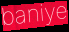
baniye